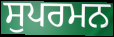
ਸੁਪਰਮਨ